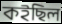
কইছিল